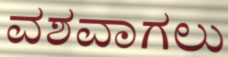
ವಶವಾಗಲು